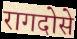
रागदोसे